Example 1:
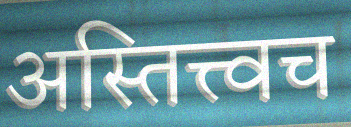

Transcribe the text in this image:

अस्तित्त्वच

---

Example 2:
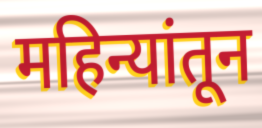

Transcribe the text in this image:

महिन्यांतून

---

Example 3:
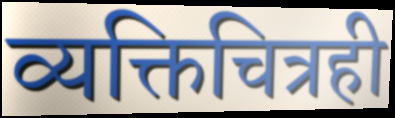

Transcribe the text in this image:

व्यक्तिचित्रही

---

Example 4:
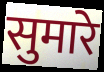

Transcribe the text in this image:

सुमारे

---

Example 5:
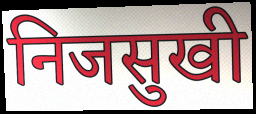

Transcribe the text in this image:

निजसुखी